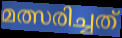
മത്സരിച്ചത്